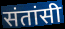
संतांसी